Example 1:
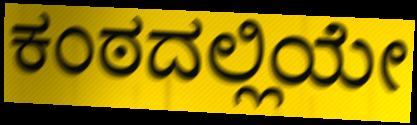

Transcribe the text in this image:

ಕಂಠದಲ್ಲಿಯೇ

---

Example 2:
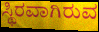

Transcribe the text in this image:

ಸ್ಥಿರವಾಗಿರುವ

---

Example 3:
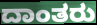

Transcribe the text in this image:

ದಾಂತರು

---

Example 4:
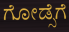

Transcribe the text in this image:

ಗೋಡ್ಸೆಗೆ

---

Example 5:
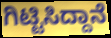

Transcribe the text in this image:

ಗಿಟ್ಟಿಸಿದ್ದಾನೆ